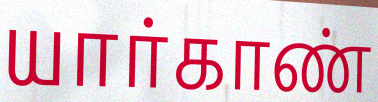
யார்காண்